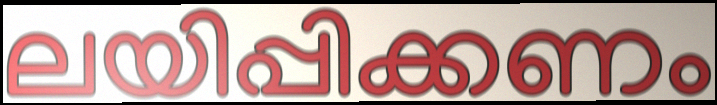
ലയിപ്പിക്കണം